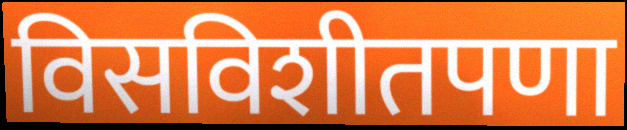
विसविशीतपणा